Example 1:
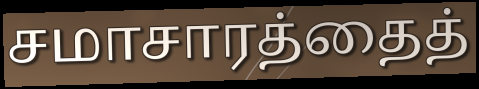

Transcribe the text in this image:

சமாசாரத்தைத்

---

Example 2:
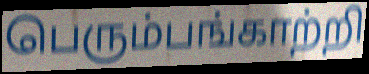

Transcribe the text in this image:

பெரும்பங்காற்றி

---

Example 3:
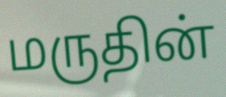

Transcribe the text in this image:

மருதின்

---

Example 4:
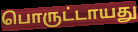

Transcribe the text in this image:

பொருட்டாயது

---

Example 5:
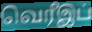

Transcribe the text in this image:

வெரீஇப்